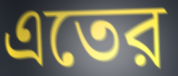
এতের